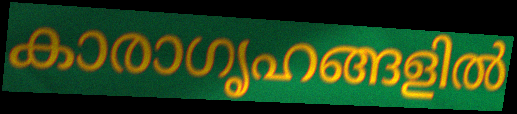
കാരാഗൃഹങ്ങളിൽ